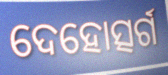
ଦେହୋତ୍ସର୍ଗ